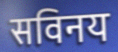
सविनय